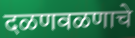
दळणवळणाचे